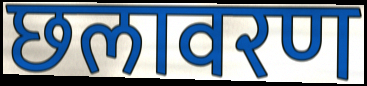
छलावरण